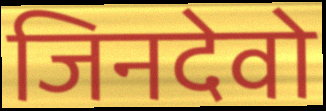
जिनदेवो